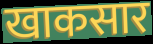
खाकसार